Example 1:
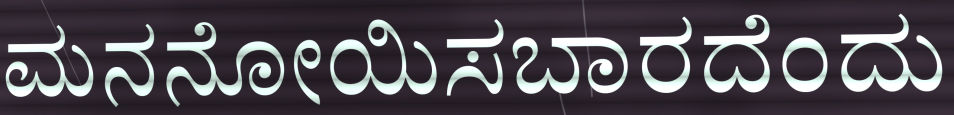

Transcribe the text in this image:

ಮನನೋಯಿಸಬಾರದೆಂದು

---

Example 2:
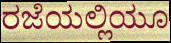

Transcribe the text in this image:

ರಜೆಯಲ್ಲಿಯೂ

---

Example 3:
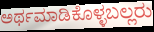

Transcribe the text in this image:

ಅರ್ಥಮಾಡಿಕೊಳ್ಳಬಲ್ಲರು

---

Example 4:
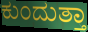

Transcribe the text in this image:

ಕುಂದುತ್ತಾ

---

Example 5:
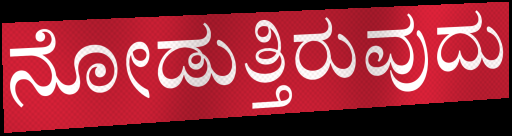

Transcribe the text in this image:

ನೋಡುತ್ತಿರುವುದು